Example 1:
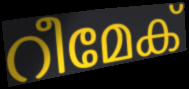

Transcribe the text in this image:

റീമേക്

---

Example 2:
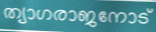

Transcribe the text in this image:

ത്യാഗരാജനോട്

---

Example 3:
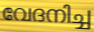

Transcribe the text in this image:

വേദനിച്ച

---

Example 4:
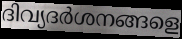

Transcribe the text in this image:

ദിവ്യദർശനങ്ങളെ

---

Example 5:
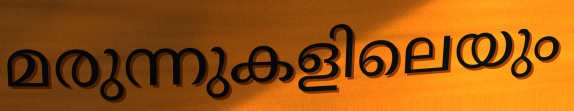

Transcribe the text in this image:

മരുന്നുകളിലെയും